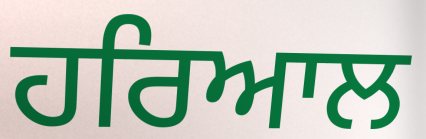
ਹਰਿਆਲ